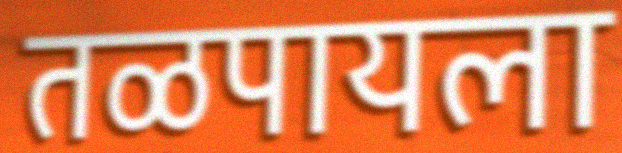
तळपायला